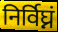
निर्विघ्नं